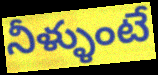
నీళ్ళుంటే